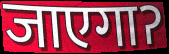
जाएगाॽ